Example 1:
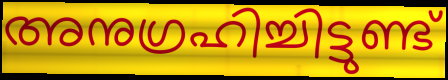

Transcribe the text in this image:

അനുഗ്രഹിച്ചിട്ടുണ്ട്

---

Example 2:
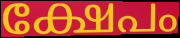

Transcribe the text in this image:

ക്ഷേപം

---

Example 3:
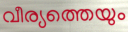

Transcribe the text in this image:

വീര്യത്തെയും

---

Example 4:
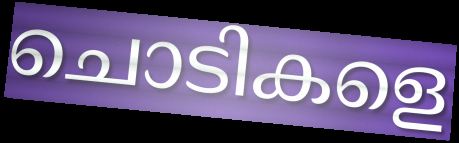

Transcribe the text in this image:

ചൊടികളെ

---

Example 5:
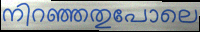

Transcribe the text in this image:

നിറഞ്ഞതുപോലെ